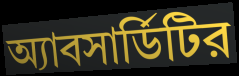
অ্যাবসার্ডিটির